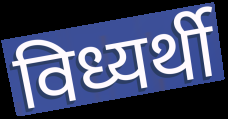
विध्यर्थी